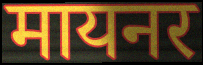
मायनर